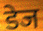
डेज